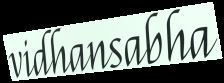
vidhansabha